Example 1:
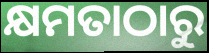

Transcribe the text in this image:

କ୍ଷମତାଠାରୁ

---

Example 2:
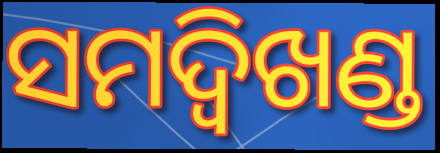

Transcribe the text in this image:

ସମଦ୍ବିଖଣ୍ଡ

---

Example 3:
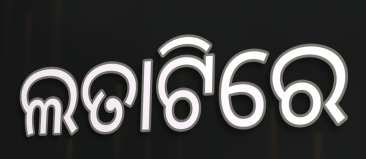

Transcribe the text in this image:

ଲତାଟିରେ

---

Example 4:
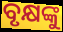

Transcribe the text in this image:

ବୃକ୍ଷଙ୍କୁ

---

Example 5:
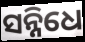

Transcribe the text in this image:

ସନ୍ନିଧେ